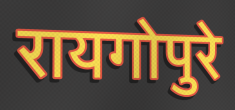
रायगोपुरे